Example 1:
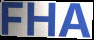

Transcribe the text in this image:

FHA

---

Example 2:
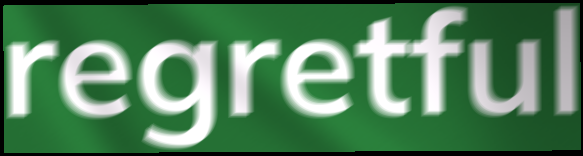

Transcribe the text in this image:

regretful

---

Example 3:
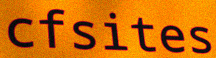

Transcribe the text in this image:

cfsites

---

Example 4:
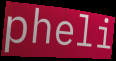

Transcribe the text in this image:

pheli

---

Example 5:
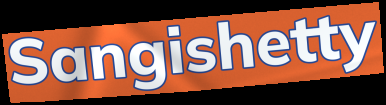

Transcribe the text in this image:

Sangishetty